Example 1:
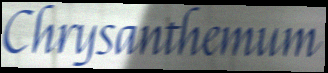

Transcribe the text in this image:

Chrysanthemum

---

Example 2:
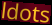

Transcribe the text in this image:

ldots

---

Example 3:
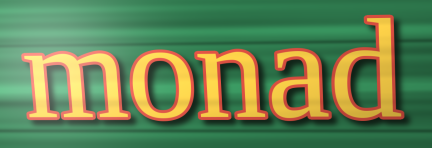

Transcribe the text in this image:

monad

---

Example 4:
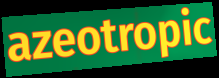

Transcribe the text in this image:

azeotropic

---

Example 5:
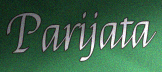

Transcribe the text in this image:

Parijata